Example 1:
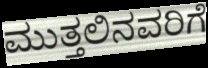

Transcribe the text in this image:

ಮುತ್ತಲಿನವರಿಗೆ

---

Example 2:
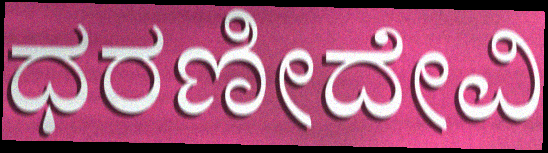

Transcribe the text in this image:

ಧರಣೀದೇವಿ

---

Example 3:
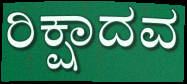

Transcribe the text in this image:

ರಿಕ್ಷಾದವ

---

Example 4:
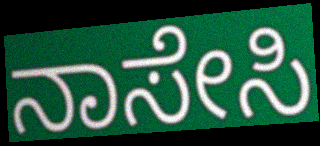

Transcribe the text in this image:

ನಾಸೇಸಿ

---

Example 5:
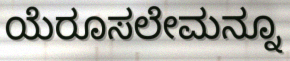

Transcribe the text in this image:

ಯೆರೂಸಲೇಮನ್ನೂ